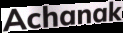
Achanak